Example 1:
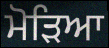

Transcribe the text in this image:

ਮੋੜਿਆ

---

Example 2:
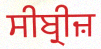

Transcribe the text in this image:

ਸੀਬ੍ਰੀਜ਼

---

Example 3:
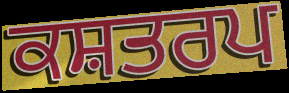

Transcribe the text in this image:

ਕਸ਼ਤਰਪ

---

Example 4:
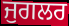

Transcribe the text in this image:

ਜੁਗਲਰ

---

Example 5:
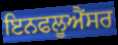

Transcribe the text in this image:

ਇਨਫਲੂਐਂਸਰ